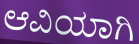
ಆವಿಯಾಗಿ